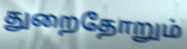
துறைதோறும்